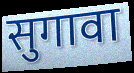
सुगावा